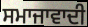
ਸਮਾਜਾਵਾਦੀ